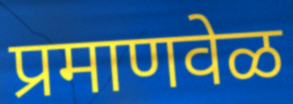
प्रमाणवेळ